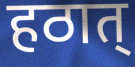
हठात्